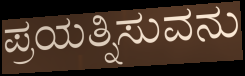
ಪ್ರಯತ್ನಿಸುವನು